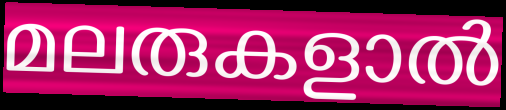
മലരുകളാൽ